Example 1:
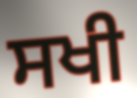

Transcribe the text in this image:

ਸਖੀ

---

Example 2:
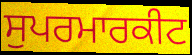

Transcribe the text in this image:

ਸੁਪਰਮਾਰਕੀਟ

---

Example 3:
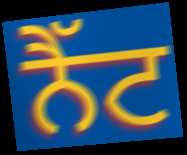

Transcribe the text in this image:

ਨੈੱਟ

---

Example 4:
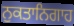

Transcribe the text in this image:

ਨੁਕਤਾਨਿਗਾਹ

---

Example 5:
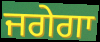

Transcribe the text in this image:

ਜਗੇਗਾ